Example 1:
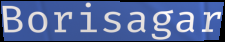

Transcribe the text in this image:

Borisagar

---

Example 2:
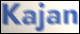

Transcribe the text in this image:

Kajan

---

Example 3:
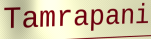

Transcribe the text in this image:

Tamrapani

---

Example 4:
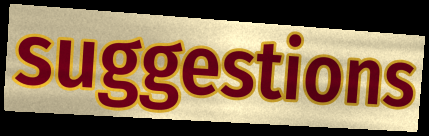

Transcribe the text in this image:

suggestions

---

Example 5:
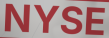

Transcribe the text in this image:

NYSE